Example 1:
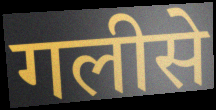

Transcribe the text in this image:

गलीसे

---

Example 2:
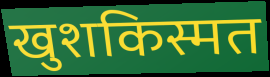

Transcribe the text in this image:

खुशकिस्मत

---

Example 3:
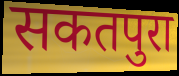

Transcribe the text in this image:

सकतपुरा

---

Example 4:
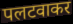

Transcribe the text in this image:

पलटवाकर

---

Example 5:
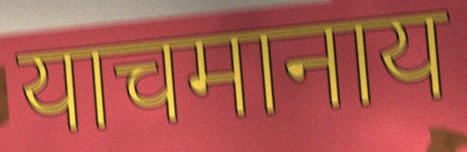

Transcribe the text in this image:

याचमानाय